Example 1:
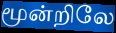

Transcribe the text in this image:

மூன்றிலே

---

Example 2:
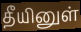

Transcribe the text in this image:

தீயினுள்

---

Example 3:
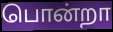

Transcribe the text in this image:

பொன்றா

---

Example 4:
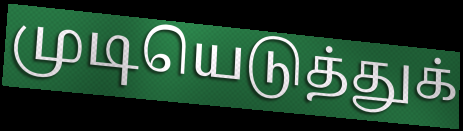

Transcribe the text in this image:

முடியெடுத்துக்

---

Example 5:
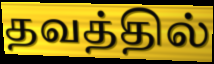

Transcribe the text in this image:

தவத்தில்